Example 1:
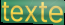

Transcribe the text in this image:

texte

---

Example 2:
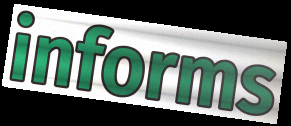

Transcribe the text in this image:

informs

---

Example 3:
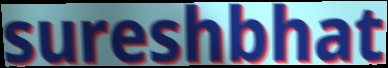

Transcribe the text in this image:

sureshbhat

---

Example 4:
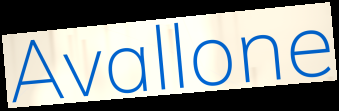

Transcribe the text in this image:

Avallone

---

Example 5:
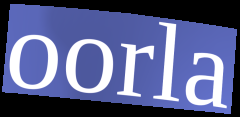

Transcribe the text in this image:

oorla